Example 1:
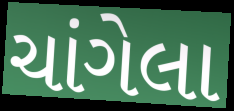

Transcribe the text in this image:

ચાંગેલા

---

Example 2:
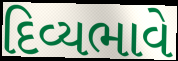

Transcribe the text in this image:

દિવ્યભાવે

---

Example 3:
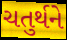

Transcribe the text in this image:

ચતુર્થને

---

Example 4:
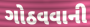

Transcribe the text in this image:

ગોઠવવાની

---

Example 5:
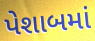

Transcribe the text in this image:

પેશાબમાં